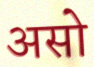
असो